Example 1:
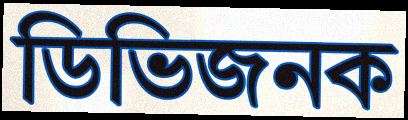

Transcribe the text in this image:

ডিভিজনক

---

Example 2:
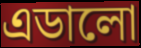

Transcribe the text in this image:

এডালো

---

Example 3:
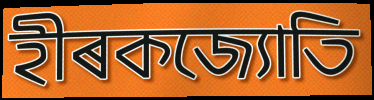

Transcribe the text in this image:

হীৰকজ্যোতি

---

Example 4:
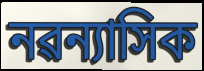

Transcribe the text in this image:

নৱন্যাসিক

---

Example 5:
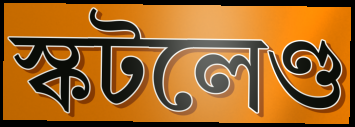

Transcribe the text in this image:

স্কটলেণ্ড